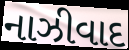
નાઝીવાદ